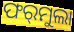
ଫର୍‌ମୁଲା